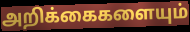
அறிக்கைகளையும்